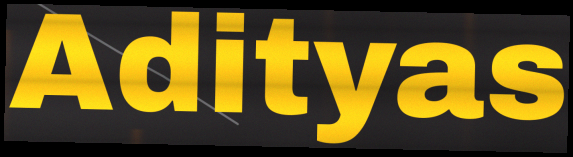
Adityas